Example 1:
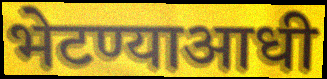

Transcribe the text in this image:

भेटण्याआधी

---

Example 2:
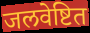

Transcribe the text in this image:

जलवेष्टित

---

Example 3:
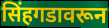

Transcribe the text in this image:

सिंहगडावरून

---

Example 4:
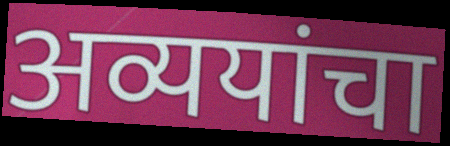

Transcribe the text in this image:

अव्ययांचा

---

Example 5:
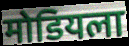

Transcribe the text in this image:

मोडियला